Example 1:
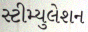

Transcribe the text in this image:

સ્ટીમ્યુલેશન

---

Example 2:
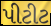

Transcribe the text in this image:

પીટીટ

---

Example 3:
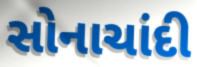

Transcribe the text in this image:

સોનાચાંદી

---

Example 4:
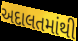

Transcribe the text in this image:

અદાલતમાંથી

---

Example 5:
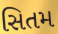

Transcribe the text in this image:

સિતમ